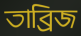
তাব্রিজ